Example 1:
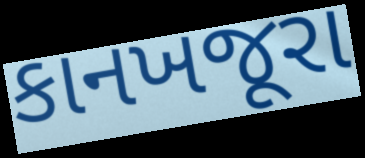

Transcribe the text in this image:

કાનખજૂરા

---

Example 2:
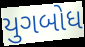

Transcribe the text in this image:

યુગબોધ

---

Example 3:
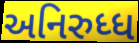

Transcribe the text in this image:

અનિરુધ્ધ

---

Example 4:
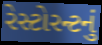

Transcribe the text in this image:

રેસ્ટોરન્ટનું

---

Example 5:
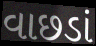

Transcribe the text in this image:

વાછડાં